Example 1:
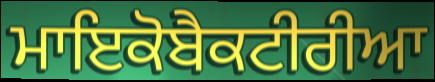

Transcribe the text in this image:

ਮਾਇਕੋਬੈਕਟੀਰੀਆ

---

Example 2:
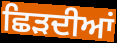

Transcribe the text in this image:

ਛਿੜਦੀਆਂ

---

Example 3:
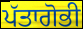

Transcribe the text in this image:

ਪੱਤਾਗੋਭੀ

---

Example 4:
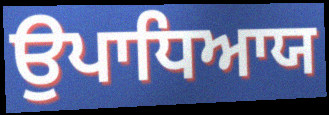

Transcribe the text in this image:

ਉਪਾਧਿਆਯ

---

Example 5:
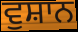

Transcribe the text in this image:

ਵੁਸ਼ਾਨ